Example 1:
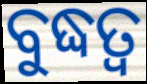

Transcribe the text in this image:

ବୁଦ୍ଧତ୍ୱ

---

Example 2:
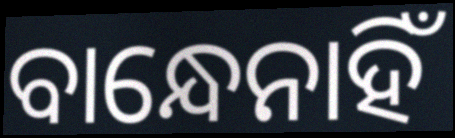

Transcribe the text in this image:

ବାନ୍ଧେନାହିଁ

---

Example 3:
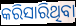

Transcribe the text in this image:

କରିସାରିଥିବା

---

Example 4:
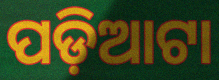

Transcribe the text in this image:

ପଡ଼ିଆଟା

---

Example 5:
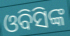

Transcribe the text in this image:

ଓବିସିଙ୍କ